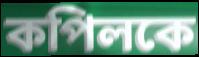
কপিলকে